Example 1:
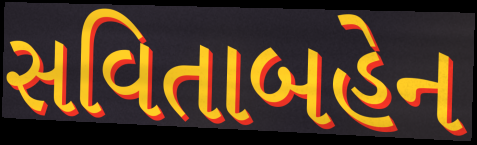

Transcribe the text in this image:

સવિતાબહેન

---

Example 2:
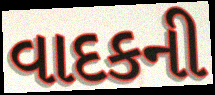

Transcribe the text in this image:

વાદકની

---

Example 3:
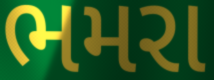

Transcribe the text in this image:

ભમરા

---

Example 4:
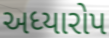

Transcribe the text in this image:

અધ્યારોપ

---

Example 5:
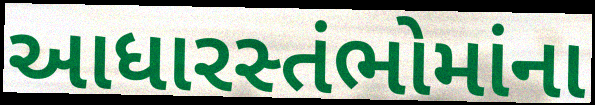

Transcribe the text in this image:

આધારસ્તંભોમાંના